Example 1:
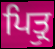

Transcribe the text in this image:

ਪਿਤ੍ਰੁ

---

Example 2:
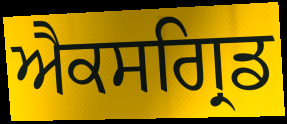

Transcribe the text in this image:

ਐਕਸਗ੍ਰਿਡ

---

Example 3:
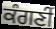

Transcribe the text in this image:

ਕੰਗਣੀਂ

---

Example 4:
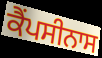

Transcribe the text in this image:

ਕੈਂਪਸੀਨਾਸ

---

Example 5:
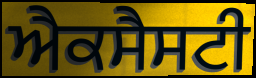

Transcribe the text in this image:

ਐਕਸੈਸਟੀ